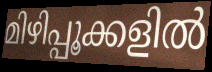
മിഴിപ്പൂക്കളിൽ